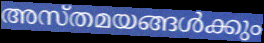
അസ്തമയങ്ങൾക്കും